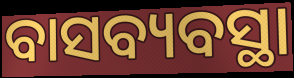
ବାସବ୍ୟବସ୍ଥା